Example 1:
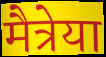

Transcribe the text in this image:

मैत्रेया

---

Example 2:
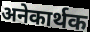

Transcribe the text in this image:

अनेकार्थक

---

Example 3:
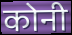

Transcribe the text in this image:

कोनी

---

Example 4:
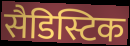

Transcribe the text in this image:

सैडिस्टिक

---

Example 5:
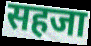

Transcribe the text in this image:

सहजा